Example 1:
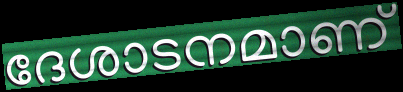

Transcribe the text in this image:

ദേശാടനമാണ്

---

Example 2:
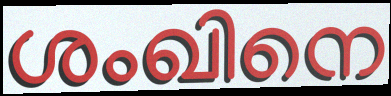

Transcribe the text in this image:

ശംഖിനെ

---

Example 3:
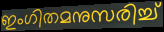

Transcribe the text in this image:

ഇംഗിതമനുസരിച്ച്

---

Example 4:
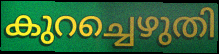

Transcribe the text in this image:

കുറച്ചെഴുതി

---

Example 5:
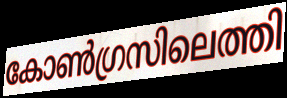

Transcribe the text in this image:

കോൺഗ്രസിലെത്തി